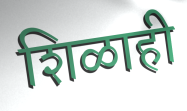
शिळाही